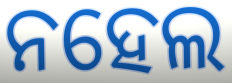
ନହେଲ